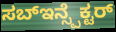
ಸಬ್ಇನ್ಸ್ಪೆಕ್ಟರ್